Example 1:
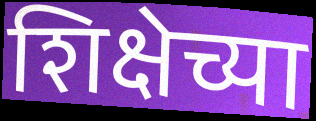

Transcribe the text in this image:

शिक्षेच्या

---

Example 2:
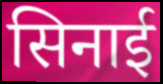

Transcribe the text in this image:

सिनाई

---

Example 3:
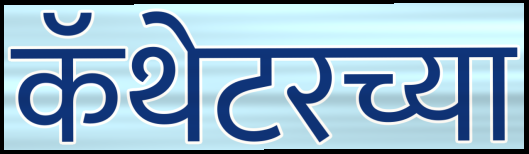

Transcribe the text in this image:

कॅथेटरच्या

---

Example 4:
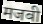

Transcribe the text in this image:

मजबी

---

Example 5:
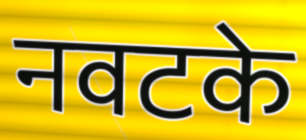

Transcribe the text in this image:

नवटके